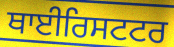
ਥਾਈਰਿਸਟਟਰ